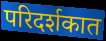
परिदर्शकात